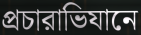
প্রচারাভিযানে